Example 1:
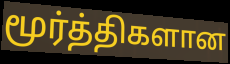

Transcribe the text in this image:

மூர்த்திகளான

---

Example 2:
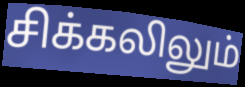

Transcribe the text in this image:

சிக்கலிலும்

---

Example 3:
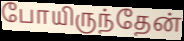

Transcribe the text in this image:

போயிருந்தேன்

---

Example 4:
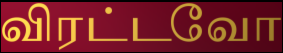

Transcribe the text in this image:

விரட்டவோ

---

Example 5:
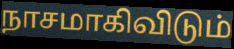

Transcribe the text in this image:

நாசமாகிவிடும்